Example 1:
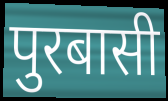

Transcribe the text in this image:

पुरबासी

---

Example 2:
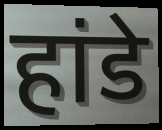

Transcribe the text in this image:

हांडे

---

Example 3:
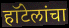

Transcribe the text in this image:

हॉटेलांचा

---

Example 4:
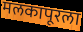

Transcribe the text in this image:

मलकापूरला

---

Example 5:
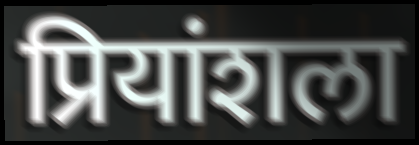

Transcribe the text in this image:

प्रियांशला